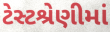
ટેસ્ટશ્રેણીમાં